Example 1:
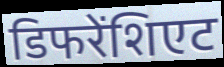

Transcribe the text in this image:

डिफरेंशिएट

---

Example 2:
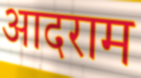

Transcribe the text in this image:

आदराम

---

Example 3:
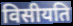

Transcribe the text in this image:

विसीयति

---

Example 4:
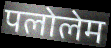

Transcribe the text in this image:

पलोलेम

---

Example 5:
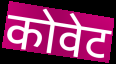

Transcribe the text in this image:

कोवेट